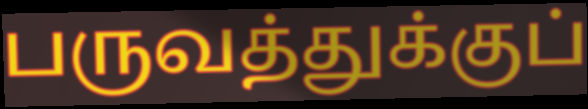
பருவத்துக்குப்